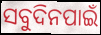
ସବୁଦିନପାଇଁ